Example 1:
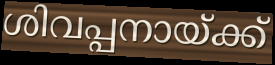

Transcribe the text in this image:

ശിവപ്പനായ്ക്ക്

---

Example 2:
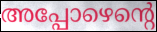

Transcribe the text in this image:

അപ്പോഴെന്റെ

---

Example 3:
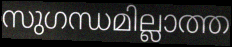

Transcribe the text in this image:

സുഗന്ധമില്ലാത്ത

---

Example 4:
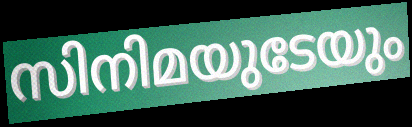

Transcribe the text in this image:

സിനിമയുടേയും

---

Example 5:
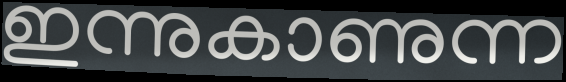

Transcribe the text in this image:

ഇന്നുകാണുന്ന